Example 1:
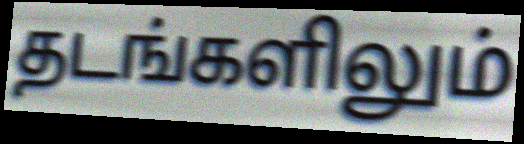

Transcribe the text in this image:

தடங்களிலும்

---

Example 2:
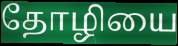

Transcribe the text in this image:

தோழியை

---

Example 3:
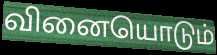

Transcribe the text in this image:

வினையொடும்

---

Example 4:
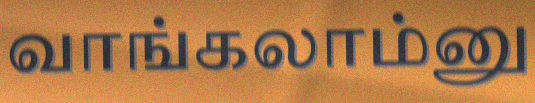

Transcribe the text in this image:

வாங்கலாம்னு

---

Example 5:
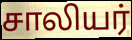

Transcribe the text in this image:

சாலியர்